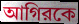
আগিরকে